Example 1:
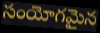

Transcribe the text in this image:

సంయోగమైన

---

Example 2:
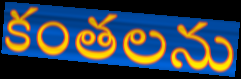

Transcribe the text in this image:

కంతలను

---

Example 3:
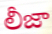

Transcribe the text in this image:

లీజా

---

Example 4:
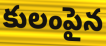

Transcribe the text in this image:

కులంపైన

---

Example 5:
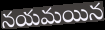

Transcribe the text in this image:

నయమయిన